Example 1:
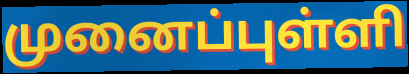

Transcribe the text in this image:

முனைப்புள்ளி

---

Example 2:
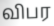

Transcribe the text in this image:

விபர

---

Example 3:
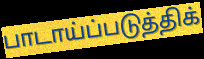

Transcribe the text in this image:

பாடாய்ப்படுத்திக்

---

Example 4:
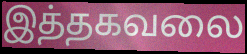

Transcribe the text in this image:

இத்தகவலை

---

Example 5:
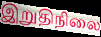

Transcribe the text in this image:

இறுதிநிலை